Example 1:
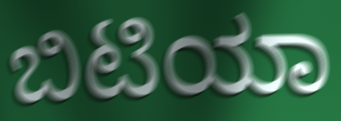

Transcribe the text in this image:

ಬಿಟಿಯಾ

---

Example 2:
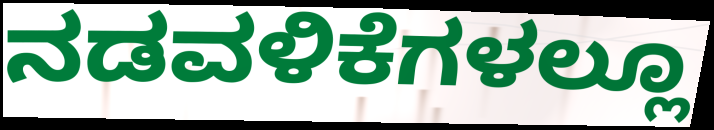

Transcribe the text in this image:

ನಡವಳಿಕೆಗಳಲ್ಲೂ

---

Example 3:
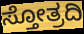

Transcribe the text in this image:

ಸ್ತೋತ್ರದಿ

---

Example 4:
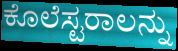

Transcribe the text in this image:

ಕೊಲೆಸ್ಟರಾಲನ್ನು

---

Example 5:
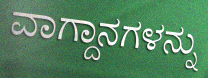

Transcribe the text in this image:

ವಾಗ್ದಾನಗಳನ್ನು